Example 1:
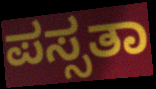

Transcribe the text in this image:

ಪಸ್ಸತಾ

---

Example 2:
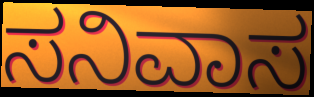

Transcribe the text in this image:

ಸನಿವಾಸ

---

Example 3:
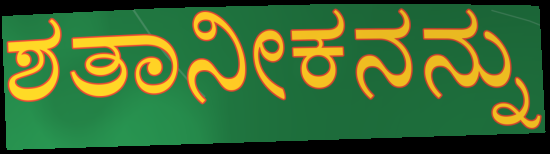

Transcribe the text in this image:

ಶತಾನೀಕನನ್ನು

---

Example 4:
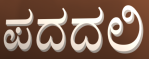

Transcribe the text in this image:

ಪದದಲಿ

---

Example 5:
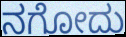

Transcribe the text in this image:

ನಗೋದು